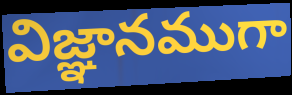
విజ్ఞానముగా